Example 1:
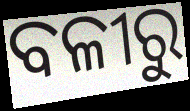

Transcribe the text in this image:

ବଳୀରୁ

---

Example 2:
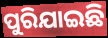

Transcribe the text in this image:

ପୁରିଯାଇଛି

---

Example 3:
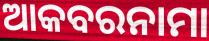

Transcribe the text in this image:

ଆକବରନାମା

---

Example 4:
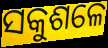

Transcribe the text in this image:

ସକୁଶଳେ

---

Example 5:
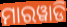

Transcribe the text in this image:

ମାରୱାଡି